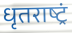
धृतराष्ट्रं